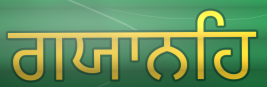
ਗਯਾਨਹਿ